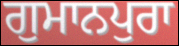
ਗੁਮਾਨਪੁਰਾ